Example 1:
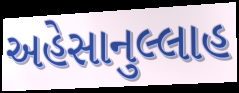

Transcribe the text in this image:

અહેસાનુલ્લાહ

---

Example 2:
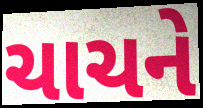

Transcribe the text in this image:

ચાચને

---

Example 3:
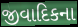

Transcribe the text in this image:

જીવાદિકના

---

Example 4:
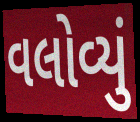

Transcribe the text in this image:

વલોવ્યું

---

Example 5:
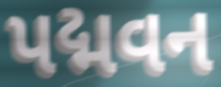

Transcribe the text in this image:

પદ્મવન